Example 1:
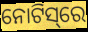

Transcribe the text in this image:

ନୋଟିସ୍‌ରେ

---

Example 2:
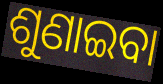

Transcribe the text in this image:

ଶୁଣାଇବା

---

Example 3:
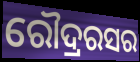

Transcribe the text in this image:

ରୌଦ୍ରରସର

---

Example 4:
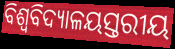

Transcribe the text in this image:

ବିଶ୍ଵବିଦ୍ୟାଳୟସ୍ତରୀୟ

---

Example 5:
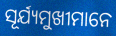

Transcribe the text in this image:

ସୂର୍ଯ୍ୟମୁଖୀମାନେ